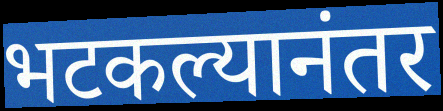
भटकल्यानंतर